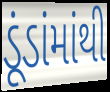
ડૂંડાંમાંથી